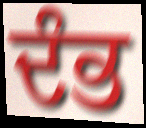
ਦੰਭ